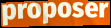
proposer